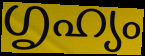
ഗൃഹ്യം